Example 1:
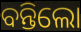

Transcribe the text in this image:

ବନ୍ତିଲୋ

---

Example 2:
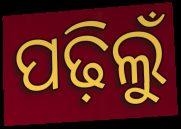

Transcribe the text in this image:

ପଢ଼ିଲୁଁ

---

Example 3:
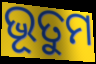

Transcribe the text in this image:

ଭୂତୁମ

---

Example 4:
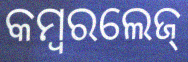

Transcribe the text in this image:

କମ୍ବରଲେଜ୍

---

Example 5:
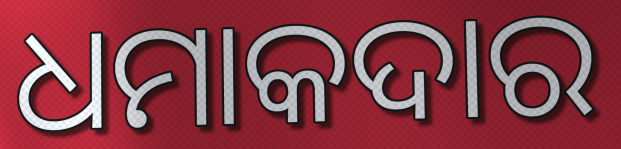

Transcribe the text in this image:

ଧମାକଦାର